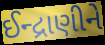
ઈન્દ્રાણીને